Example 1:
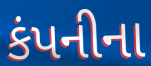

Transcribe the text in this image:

કંપનીના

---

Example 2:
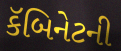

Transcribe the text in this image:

કૅબિનેટની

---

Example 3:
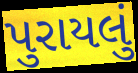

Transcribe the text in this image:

પુરાયલું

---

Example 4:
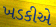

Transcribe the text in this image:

ખડકીએ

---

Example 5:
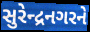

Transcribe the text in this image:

સુરેન્દ્રનગરને